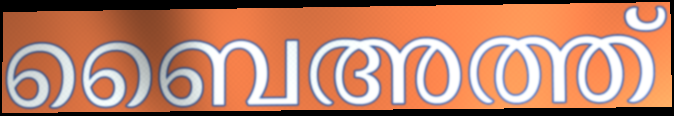
ബൈഅത്ത്